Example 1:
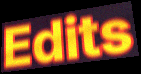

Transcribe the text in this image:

Edits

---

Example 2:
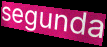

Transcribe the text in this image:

segunda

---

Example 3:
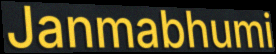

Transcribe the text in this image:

Janmabhumi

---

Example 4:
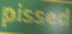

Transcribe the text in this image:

pissed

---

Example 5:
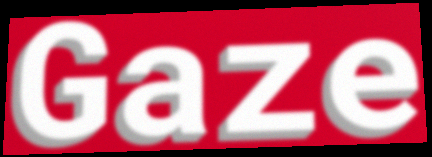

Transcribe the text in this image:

Gaze